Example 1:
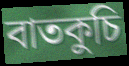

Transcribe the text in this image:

বাতকুচি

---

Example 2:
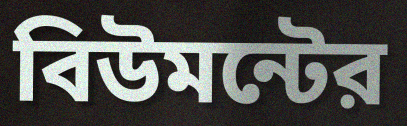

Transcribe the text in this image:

বিউমন্টের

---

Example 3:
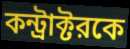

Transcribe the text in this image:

কন্ট্রাক্টরকে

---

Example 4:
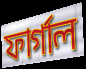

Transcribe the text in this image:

ফার্গাল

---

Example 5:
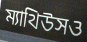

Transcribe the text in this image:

ম্যাথিউসও